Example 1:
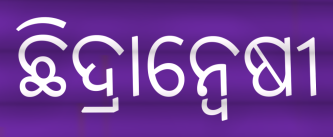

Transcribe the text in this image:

ଛିଦ୍ରାନ୍ୱେଷୀ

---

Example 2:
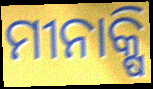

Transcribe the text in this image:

ମୀନାକ୍ଷି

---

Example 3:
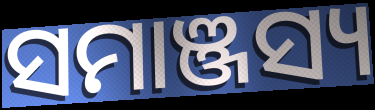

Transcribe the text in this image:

ସମାଞ୍ଜସ୍ୟ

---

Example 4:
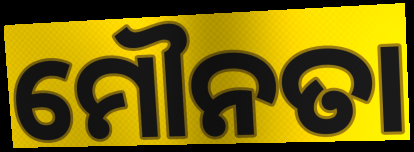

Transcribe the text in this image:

ମୌନତା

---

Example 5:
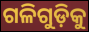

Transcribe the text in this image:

ଗଳିଗୁଡ଼ିକୁ